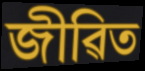
জীৱিত